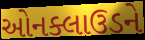
ઓનક્લાઉડને